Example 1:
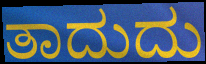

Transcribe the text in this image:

ತಾದುದು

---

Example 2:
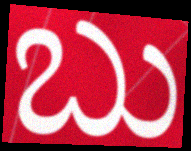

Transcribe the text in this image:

ಬು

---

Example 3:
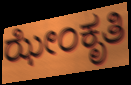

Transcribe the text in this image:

ಝೇಂಕೃತಿ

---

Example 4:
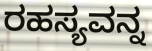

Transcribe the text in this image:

ರಹಸ್ಯವನ್ನ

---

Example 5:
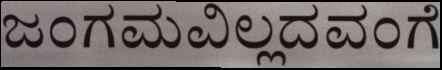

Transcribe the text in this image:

ಜಂಗಮವಿಲ್ಲದವಂಗೆ